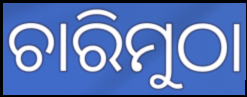
ଚାରିମୁଠା